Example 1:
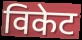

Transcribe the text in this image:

विकेट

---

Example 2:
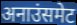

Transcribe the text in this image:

अनाउंसमेट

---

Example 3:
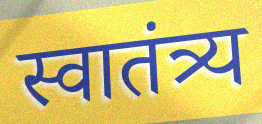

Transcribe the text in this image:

स्वातंत्र्य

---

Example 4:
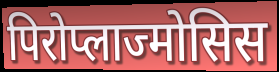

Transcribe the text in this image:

पिरोप्लाज्मोसिस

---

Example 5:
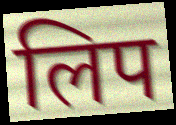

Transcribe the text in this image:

लिप